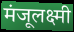
मंजूलक्ष्मी